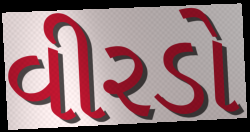
વીરડો